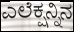
ಎಲೆಕ್ಷನ್ನಿನ